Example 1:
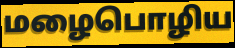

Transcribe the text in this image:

மழைபொழிய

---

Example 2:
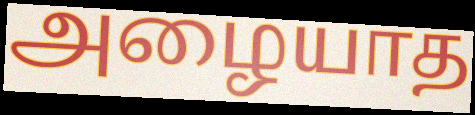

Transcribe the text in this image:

அழையாத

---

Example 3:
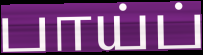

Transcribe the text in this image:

பாய்ப்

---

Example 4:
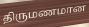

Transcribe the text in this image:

திருமணமான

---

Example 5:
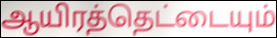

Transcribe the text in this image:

ஆயிரத்தெட்டையும்